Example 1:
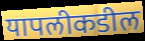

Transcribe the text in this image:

यापलीकडील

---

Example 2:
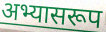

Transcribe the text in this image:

अभ्यासरूप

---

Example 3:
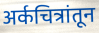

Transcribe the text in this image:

अर्कचित्रांतून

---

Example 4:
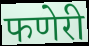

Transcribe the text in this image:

फणेरी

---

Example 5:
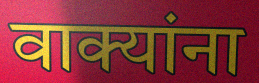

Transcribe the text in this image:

वाक्यांना